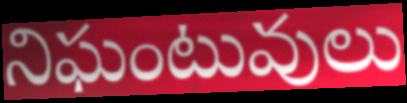
నిఘంటువులు